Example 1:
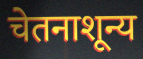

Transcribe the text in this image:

चेतनाशून्य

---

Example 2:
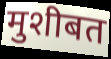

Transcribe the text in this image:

मुशीबत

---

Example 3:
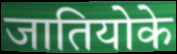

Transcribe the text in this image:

जातियोके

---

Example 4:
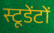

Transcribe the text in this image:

स्टूडेंटों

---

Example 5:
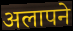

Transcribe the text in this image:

अलापने